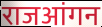
राजआंगन